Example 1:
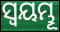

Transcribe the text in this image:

ସ୍ଵୟମ୍ଭୂ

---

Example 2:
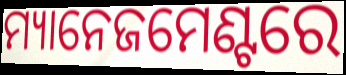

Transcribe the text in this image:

ମ୍ୟାନେଜମେଣ୍ଟରେ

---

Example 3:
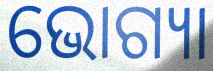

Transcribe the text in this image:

ଭୋଗ୍ୟା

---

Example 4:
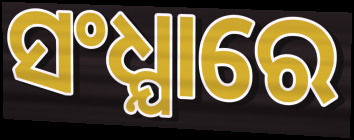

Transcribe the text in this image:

ସଂଧ୍ଯାରେ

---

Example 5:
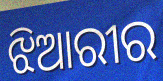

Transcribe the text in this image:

ଝିଆରୀର